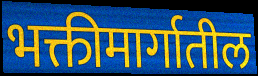
भक्तीमार्गातील